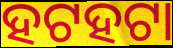
ହଟହଟା